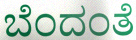
ಬೆಂದಂತೆ